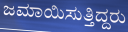
ಜಮಾಯಿಸುತ್ತಿದ್ದರು